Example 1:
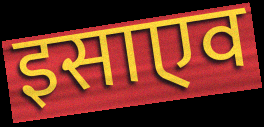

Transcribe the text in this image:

इसाएव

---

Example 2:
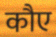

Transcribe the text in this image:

कौए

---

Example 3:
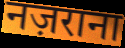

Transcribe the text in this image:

नज़राना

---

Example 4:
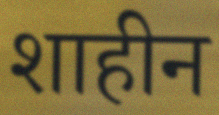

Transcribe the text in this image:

शाहीन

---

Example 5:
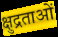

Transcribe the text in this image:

क्षुद्रताओं